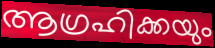
ആഗ്രഹിക്കയും